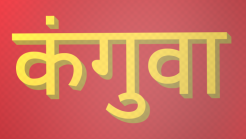
कंगुवा